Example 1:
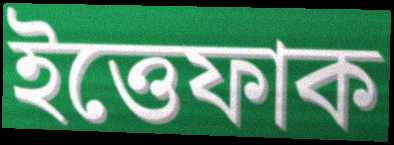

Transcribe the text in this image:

ইত্তেফাক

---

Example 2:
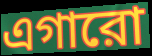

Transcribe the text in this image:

এগারো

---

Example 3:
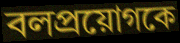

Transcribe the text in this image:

বলপ্রয়োগকে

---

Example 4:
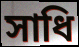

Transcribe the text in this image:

সাধি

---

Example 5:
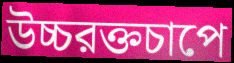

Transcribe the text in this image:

উচ্চরক্তচাপে